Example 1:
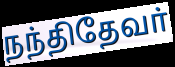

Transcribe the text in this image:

நந்திதேவர்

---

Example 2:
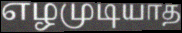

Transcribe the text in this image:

எழமுடியாத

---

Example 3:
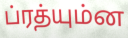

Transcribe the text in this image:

ப்ரத்யும்ன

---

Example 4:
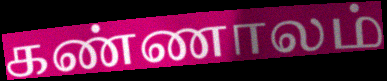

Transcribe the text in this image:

கண்ணாலம்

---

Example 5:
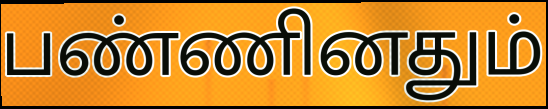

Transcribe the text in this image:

பண்ணினதும்